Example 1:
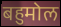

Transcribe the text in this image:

बहुमोल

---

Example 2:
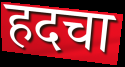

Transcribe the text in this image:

हदचा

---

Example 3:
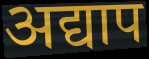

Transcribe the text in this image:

अद्याप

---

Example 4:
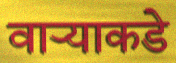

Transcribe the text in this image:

वाऱ्याकडे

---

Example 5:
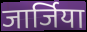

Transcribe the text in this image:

जार्जिया